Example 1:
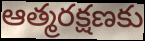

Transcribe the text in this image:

ఆత్మరక్షణకు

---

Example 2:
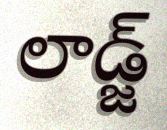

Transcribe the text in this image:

లాడ్జ్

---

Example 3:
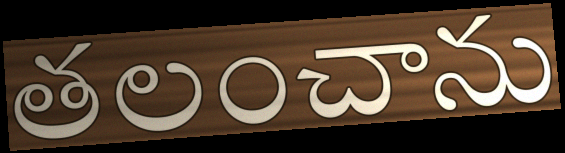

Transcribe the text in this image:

తలంచాను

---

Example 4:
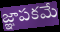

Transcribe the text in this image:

జ్ఞాపకమే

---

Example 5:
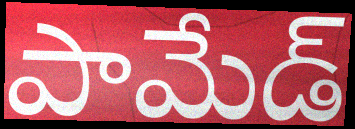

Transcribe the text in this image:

పామేడ్